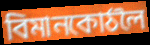
বিমানকোঠলৈ